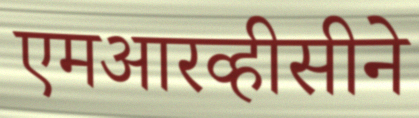
एमआरव्हीसीने